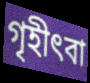
গৃহীৎবা